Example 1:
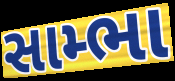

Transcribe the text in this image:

સામ્ભા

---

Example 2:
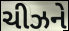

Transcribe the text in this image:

ચીઝને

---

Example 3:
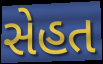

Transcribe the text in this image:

સેહત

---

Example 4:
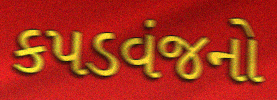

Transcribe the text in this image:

કપડવંજનો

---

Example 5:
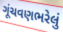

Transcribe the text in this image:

ગૂંચવણભરેલું